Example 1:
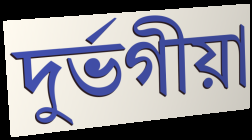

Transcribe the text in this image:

দুৰ্ভগীয়া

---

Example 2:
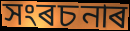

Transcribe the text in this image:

সংৰচনাৰ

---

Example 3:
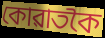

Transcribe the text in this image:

কোৱাতকৈ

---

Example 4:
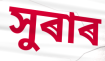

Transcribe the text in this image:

সুৰাৰ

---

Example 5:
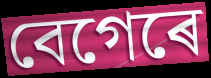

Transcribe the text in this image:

বেগেৰে